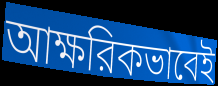
আক্ষরিকভাবেই